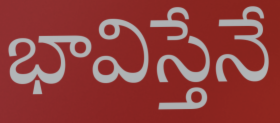
భావిస్తేనే